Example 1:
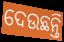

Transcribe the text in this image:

ଦେଉଛନ୍ତି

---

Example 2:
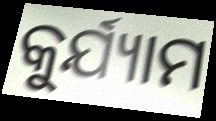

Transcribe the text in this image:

କୁର୍ଯ୍ୟାମ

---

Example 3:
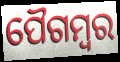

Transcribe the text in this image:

ପୈଗମ୍ବର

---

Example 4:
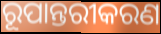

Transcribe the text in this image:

ରୂପାନ୍ତରୀକରଣ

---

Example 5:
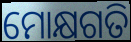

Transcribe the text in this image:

ମୋକ୍ଷଗତି